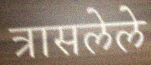
त्रासलेले